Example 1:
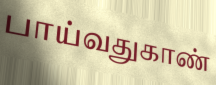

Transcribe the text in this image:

பாய்வதுகாண்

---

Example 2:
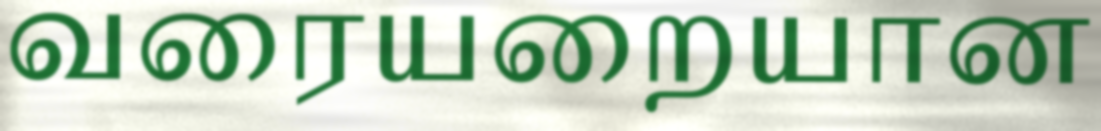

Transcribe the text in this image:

வரையறையான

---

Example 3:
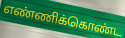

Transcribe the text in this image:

எண்ணிக்கொண்ட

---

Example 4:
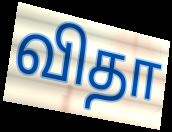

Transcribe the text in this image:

விதா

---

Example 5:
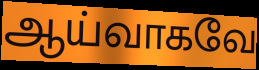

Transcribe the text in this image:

ஆய்வாகவே